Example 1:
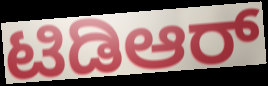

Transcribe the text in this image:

ಟಿಡಿಆರ್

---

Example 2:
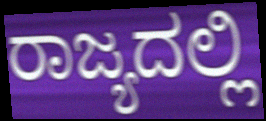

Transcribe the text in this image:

ರಾಜ್ಯದಲ್ಲಿ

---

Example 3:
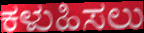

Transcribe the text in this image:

ಕಳುಹಿಸಲು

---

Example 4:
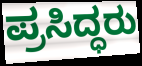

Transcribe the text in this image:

ಪ್ರಸಿದ್ಧರು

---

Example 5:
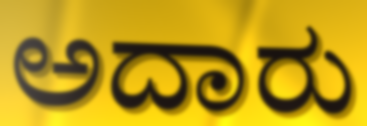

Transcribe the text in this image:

ಅದಾರು